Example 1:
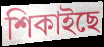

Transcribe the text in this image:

শিকাইছে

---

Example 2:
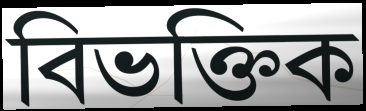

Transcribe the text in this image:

বিভক্তিক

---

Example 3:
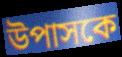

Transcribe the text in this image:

উপাসকে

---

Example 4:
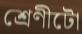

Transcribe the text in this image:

শ্ৰেণীটো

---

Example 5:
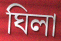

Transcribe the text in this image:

ঘিলা